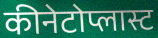
कीनेटोप्लास्ट